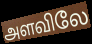
அளவிலே